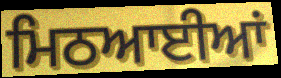
ਮਿਠਆਈਆਂ